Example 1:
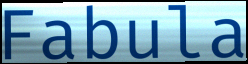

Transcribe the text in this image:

Fabula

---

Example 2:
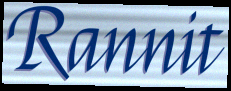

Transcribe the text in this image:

Rannit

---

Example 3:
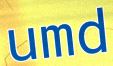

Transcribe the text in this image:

umd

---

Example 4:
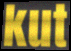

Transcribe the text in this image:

kut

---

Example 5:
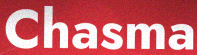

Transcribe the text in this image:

Chasma